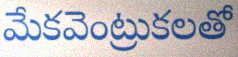
మేకవెంట్రుకలతో